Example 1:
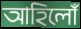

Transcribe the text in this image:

আহিলোঁ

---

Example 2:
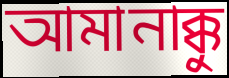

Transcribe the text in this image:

আমানাক্কু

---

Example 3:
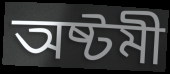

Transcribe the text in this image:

অষ্টমী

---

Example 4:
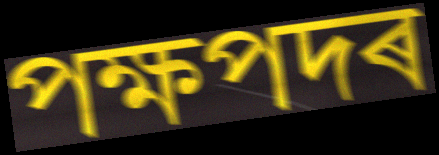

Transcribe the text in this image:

পক্ষপদৰ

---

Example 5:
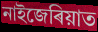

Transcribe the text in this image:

নাইজেৰিয়াত